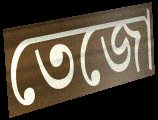
তেজো